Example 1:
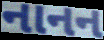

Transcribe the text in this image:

નાનન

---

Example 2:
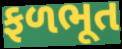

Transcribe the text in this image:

ફળભૂત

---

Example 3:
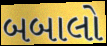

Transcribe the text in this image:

બબાલો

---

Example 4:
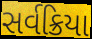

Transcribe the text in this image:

સર્વક્રિયા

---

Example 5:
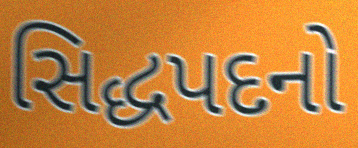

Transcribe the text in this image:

સિદ્ધપદનો